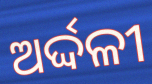
ଅର୍ଦ୍ଦଳୀ